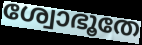
ശ്വോഭൂതേ